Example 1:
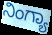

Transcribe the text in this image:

ನಿಂಗ್ಯಾ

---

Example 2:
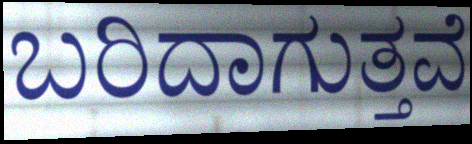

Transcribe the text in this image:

ಬರಿದಾಗುತ್ತವೆ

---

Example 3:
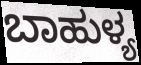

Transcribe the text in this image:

ಬಾಹುಳ್ಯ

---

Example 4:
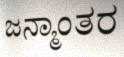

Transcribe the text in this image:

ಜನ್ಮಾಂತರ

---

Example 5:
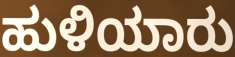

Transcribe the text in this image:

ಹುಳಿಯಾರು